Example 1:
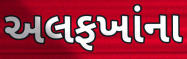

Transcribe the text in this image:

અલફખાંના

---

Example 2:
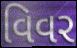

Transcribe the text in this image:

વિવર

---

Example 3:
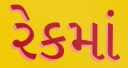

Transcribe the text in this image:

રેકમાં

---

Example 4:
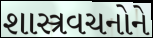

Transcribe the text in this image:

શાસ્ત્રવચનોને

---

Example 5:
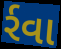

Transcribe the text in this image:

ર્રવા